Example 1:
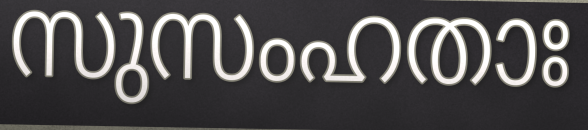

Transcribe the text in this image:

സുസംഹതാഃ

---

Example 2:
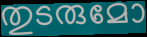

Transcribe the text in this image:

തുടരുമോ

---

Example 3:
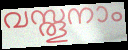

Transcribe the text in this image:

വസ്തൂനാം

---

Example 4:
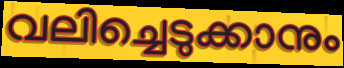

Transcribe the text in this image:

വലിച്ചെടുക്കാനും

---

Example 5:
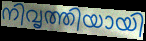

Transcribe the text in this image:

നിവൃത്തിയായി